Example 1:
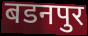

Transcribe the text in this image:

बडनपुर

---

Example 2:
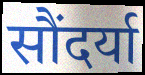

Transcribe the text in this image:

सौंदर्या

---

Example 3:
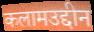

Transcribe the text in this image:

कलामउद्दीन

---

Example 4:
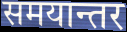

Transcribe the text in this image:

समयान्तर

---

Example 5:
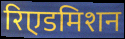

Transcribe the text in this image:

रिएडमिशन